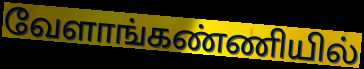
வேளாங்கண்ணியில்